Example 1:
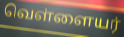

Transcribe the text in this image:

வெள்ளையர்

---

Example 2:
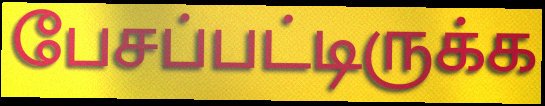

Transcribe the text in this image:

பேசப்பட்டிருக்க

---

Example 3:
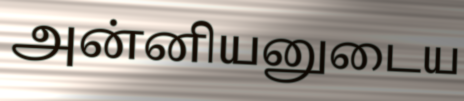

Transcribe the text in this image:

அன்னியனுடைய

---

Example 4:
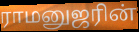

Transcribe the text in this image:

ராமனுஜரின்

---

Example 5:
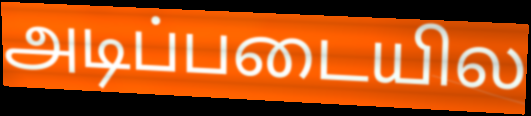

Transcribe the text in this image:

அடிப்படையில